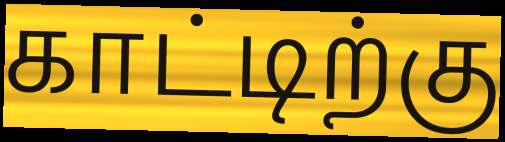
காட்டிற்கு